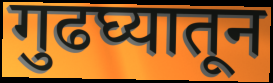
गुढघ्यातून